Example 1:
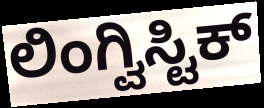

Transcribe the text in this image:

ಲಿಂಗ್ವಿಸ್ಟಿಕ್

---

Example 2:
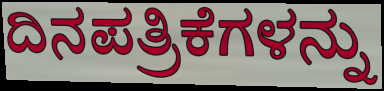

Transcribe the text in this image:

ದಿನಪತ್ರಿಕೆಗಳನ್ನು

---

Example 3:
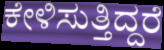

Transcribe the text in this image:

ಕೇಳಿಸುತ್ತಿದ್ದರೆ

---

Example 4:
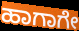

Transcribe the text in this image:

ಹಾಗಾಗೇ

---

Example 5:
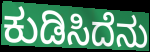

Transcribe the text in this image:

ಕುಡಿಸಿದೆನು